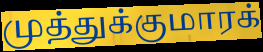
முத்துக்குமாரக்